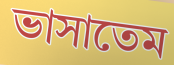
ভাসাতেম